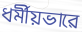
ধৰ্মীয়ভাৱে